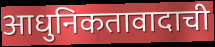
आधुनिकतावादाची